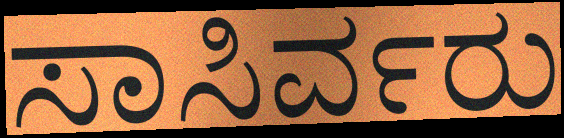
ಸಾಸಿರ್ವರು